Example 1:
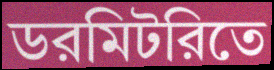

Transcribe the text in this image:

ডরমিটরিতে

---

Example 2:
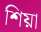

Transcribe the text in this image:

শিয়া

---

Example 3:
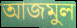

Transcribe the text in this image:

আজমুল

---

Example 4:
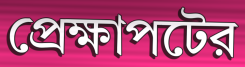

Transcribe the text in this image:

প্রেক্ষাপটের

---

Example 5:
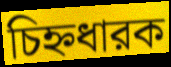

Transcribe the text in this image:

চিহ্নধারক